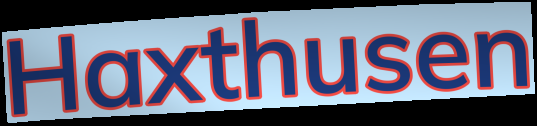
Haxthusen